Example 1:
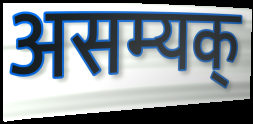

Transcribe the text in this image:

असम्यक्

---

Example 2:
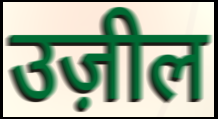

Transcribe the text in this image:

उज़ील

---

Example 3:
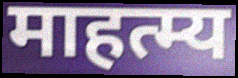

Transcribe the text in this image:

माहत्म्य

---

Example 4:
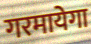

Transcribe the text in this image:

गरमायेगा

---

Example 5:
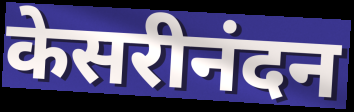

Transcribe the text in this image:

केसरीनंदन